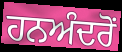
ਹਨਅੰਦਰੋਂ